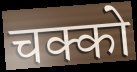
चक्को